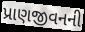
પ્રાણજીવનની